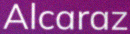
Alcaraz